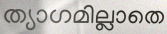
ത്യാഗമില്ലാതെ